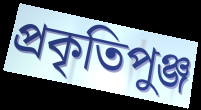
প্রকৃতিপুঞ্জ